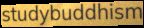
studybuddhism